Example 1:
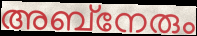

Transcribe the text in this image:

അബ്നേരും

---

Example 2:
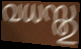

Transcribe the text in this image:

വധസ്തു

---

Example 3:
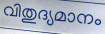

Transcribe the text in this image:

വിതുദ്യമാനം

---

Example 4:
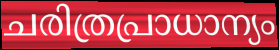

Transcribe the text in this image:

ചരിത്രപ്രാധാന്യം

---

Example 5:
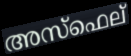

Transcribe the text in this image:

അസ്ഫെല്